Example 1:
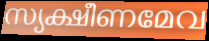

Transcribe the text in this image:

സ്യക്ഷീണമേവ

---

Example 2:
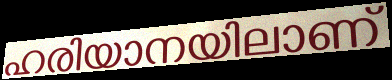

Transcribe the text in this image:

ഹരിയാനയിലാണ്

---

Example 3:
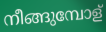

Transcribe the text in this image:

നീങ്ങുമ്പോള്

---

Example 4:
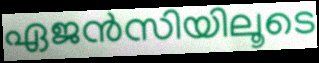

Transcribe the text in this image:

ഏജൻസിയിലൂടെ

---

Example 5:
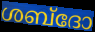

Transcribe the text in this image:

ശബ്ദോ